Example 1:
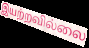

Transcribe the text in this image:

இயற்றவில்லை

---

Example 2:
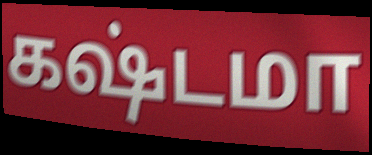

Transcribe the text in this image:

கஷ்டமா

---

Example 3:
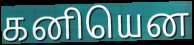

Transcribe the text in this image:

கனியென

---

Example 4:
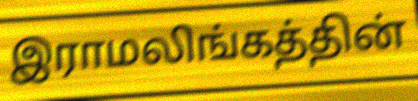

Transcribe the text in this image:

இராமலிங்கத்தின்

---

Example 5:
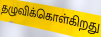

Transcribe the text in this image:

தழுவிக்கொள்கிறது